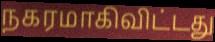
நகரமாகிவிட்டது